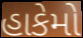
હાકેમો